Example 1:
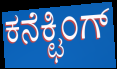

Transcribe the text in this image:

ಕನೆಕ್ಟಿಂಗ್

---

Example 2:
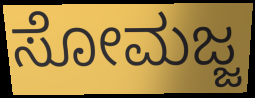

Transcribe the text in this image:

ಸೋಮಜ್ಜ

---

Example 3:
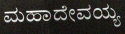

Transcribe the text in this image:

ಮಹಾದೇವಯ್ಯ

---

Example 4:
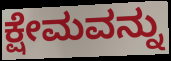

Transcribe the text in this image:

ಕ್ಷೇಮವನ್ನು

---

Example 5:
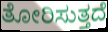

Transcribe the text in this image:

ತೋರಿಸುತ್ತದೆ